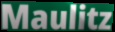
Maulitz